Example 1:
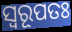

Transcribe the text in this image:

ସ୍ଵରୂପତଃ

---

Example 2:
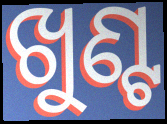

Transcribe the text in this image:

ଖୁଣ୍ଟ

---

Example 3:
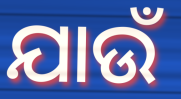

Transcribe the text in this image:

ଯାଉଁ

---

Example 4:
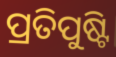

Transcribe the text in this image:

ପ୍ରତିପୁଷ୍ଟି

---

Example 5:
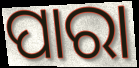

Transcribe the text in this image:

ପାରା